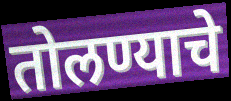
तोलण्याचे